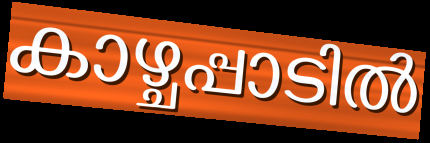
കാഴ്ചപ്പാടിൽ